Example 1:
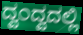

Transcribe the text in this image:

ದ್ವಂದ್ವದಲ್ಲಿ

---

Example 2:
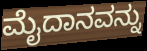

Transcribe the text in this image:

ಮೈದಾನವನ್ನು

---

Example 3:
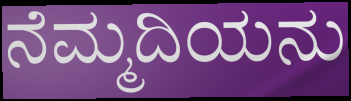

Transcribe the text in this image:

ನೆಮ್ಮದಿಯನು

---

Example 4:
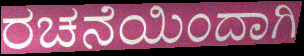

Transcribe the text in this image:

ರಚನೆಯಿಂದಾಗಿ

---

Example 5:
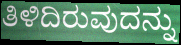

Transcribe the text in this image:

ತಿಳಿದಿರುವುದನ್ನು